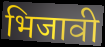
भिजावी